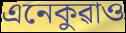
এনেকুৱাও